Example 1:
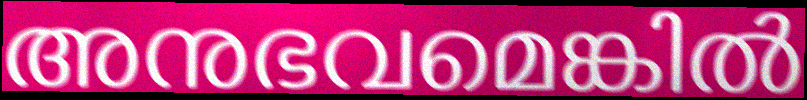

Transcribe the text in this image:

അനുഭവമെങ്കിൽ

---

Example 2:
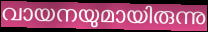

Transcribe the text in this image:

വായനയുമായിരുന്നു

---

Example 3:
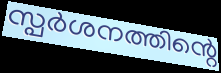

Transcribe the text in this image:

സ്പർശനത്തിന്റെ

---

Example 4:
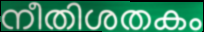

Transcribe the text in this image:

നീതിശതകം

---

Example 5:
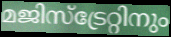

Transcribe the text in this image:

മജിസ്ട്രേറ്റിനും